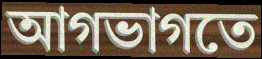
আগভাগতে